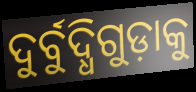
ଦୁର୍ବୁଦ୍ଧିଗୁଡ଼ାକୁ